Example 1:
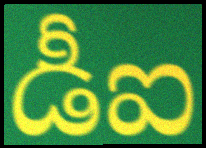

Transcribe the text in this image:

డీఐ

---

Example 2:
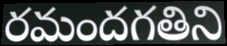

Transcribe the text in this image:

రమందగతిని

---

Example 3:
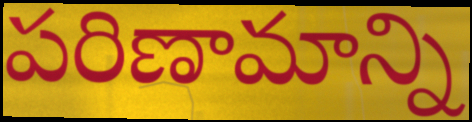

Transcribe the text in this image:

పరిణామాన్ని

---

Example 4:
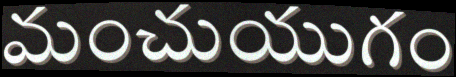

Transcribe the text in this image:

మంచుయుగం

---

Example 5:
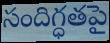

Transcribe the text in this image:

సందిగ్ధతపై